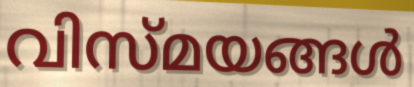
വിസ്മയങ്ങൾ